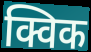
क्विक